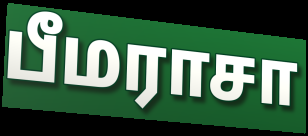
பீமராசா